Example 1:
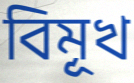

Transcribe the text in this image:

বিমূখ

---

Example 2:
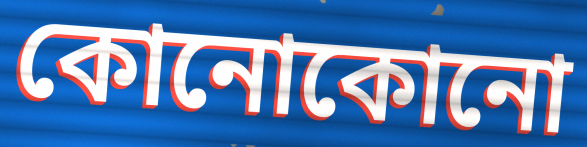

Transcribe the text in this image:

কোনোকোনো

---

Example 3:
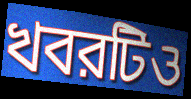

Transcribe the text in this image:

খবরটিও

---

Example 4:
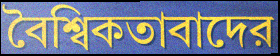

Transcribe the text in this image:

বৈশ্বিকতাবাদের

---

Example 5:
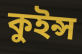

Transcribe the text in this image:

কুইন্স